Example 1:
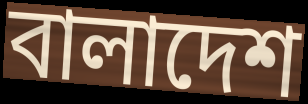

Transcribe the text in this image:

বালাদেশ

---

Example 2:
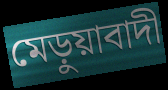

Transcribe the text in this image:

মেড়ুয়াবাদী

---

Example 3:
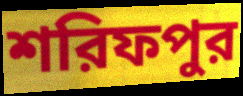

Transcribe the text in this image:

শরিফপুর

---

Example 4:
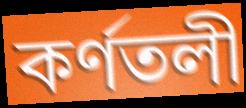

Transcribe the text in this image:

কর্ণতলী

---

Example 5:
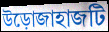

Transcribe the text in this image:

উড়োজাহাজটি